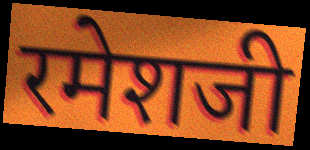
रमेशजी